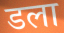
डला